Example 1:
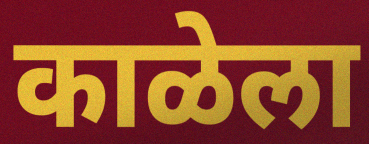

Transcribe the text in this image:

काळेला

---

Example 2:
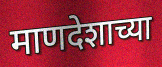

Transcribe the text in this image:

माणदेशाच्या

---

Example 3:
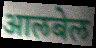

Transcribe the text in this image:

आलबेल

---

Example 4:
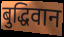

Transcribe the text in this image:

बुद्धिवान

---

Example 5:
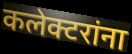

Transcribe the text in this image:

कलेक्टरांना